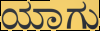
ಯಾಗು